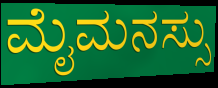
ಮೈಮನಸ್ಸು